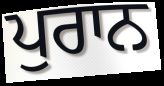
ਪੁਰਾਨ